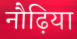
नौढ़िया